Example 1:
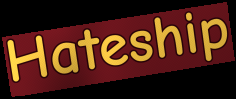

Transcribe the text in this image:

Hateship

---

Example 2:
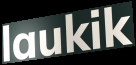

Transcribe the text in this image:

laukik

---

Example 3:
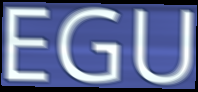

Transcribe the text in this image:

EGU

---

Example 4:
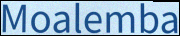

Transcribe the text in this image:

Moalemba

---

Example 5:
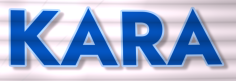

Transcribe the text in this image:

KARA